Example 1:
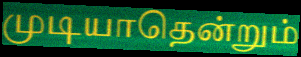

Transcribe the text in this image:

முடியாதென்றும்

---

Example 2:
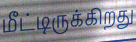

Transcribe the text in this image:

மீட்டிருக்கிறது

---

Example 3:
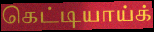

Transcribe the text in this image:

கெட்டியாய்க்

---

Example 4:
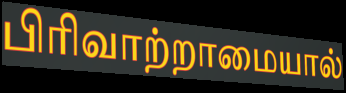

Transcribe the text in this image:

பிரிவாற்றாமையால்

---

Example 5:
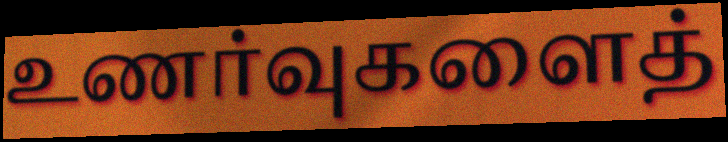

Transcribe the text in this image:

உணர்வுகளைத்